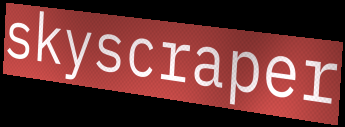
skyscraper